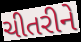
ચીતરીને